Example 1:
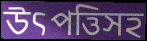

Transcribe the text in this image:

উৎপত্তিসহ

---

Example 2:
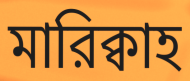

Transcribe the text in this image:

মারিক্বাহ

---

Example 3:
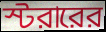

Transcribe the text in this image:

স্টরারের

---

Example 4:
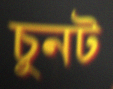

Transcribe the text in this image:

চুনট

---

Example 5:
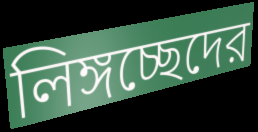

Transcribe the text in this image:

লিঙ্গচ্ছেদের